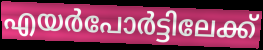
എയർപോർട്ടിലേക്ക്